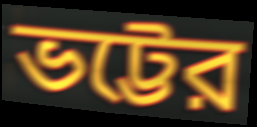
ভট্টের